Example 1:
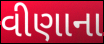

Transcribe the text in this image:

વીણાના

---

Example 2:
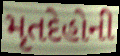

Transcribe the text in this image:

મૃતદેહોની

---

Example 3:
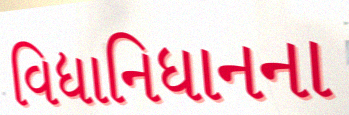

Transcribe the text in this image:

વિદ્યાનિધાનના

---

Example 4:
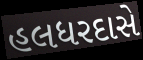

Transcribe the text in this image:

હલધરદાસે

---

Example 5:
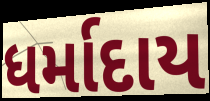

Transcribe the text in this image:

ધર્માદાય